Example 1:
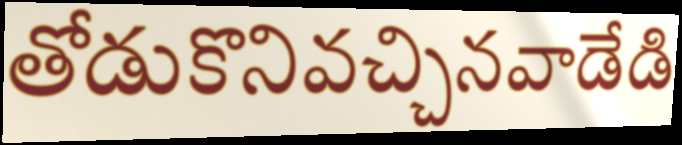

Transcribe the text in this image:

తోడుకొనివచ్చినవాడేడి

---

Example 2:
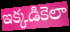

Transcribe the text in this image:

ఇక్కడికెలా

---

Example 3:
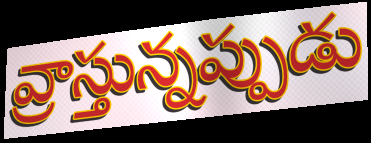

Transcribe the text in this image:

వ్రాస్తున్నప్పుడు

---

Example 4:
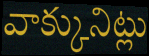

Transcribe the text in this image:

వాక్కునిట్లు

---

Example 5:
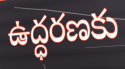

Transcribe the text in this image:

ఉద్ధరణకు